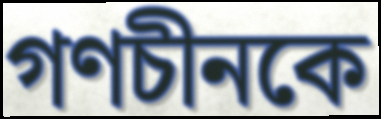
গণচীনকে